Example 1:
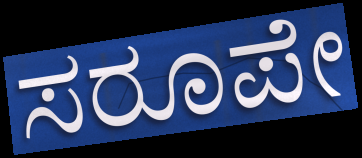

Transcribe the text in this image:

ಸರೂಪೇ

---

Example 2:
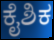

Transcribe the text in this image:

ಕೈಶಿಕ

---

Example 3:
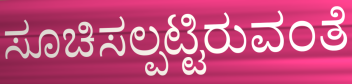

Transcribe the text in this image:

ಸೂಚಿಸಲ್ಪಟ್ಟಿರುವಂತೆ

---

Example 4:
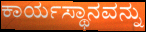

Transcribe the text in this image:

ಕಾರ್ಯಸ್ಥಾನವನ್ನು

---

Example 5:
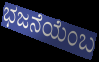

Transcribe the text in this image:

ಭಜನೆಯೆಂಬ